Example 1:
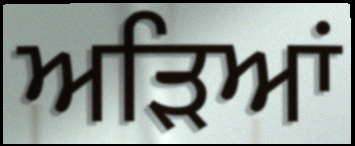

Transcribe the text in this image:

ਅੜਿਆਂ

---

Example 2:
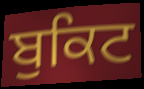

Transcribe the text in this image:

ਬੁਕਿਟ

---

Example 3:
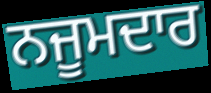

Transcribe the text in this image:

ਨਜੂਮਦਾਰ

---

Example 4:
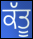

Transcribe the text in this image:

ਕੱਤੂ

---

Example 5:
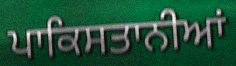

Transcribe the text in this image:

ਪਾਕਿਸਤਾਨੀਆਂ